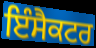
ਇੰਸੈਕਟਰ